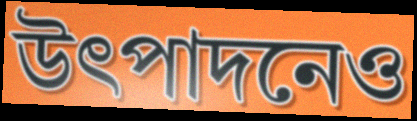
উৎপাদনেও